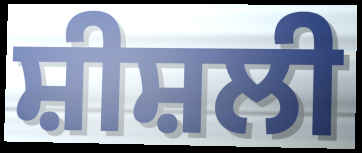
ਸ਼ੀਸ਼ਲੀ